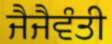
ਜੈਜੈਵੰਤੀ